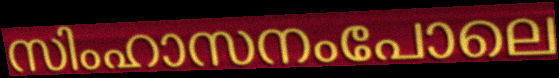
സിംഹാസനംപോലെ